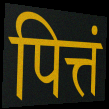
पित्तं